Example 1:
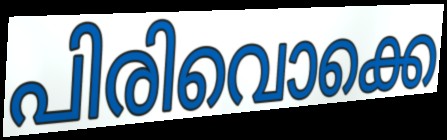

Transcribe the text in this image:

പിരിവൊക്കെ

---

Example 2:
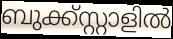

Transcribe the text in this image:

ബുക്ക്സ്റ്റാളിൽ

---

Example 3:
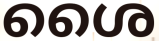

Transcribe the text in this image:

ശൈ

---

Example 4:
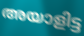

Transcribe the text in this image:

അയാളിട്ട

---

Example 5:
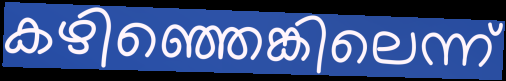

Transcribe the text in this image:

കഴിഞ്ഞെങ്കിലെന്ന്